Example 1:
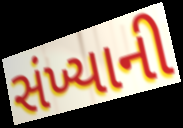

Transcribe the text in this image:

સંખ્યાની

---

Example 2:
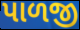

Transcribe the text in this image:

પાળજી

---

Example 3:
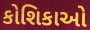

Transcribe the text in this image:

કોશિકાઓ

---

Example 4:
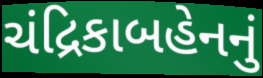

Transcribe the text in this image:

ચંદ્રિકાબહેનનું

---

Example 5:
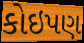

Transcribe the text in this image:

કોઇપણ